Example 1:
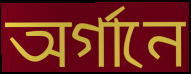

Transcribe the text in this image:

অর্গানে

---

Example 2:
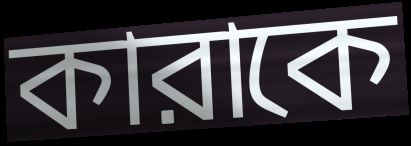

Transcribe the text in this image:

কারাকে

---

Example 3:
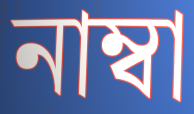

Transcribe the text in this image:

নাম্বা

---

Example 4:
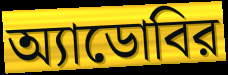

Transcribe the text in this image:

অ্যাডোবির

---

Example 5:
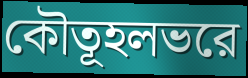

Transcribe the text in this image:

কৌতূহলভরে